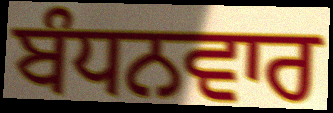
ਬੰਧਨਵਾਰ